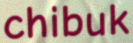
chibuk